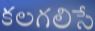
కలగలిసే